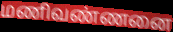
மணிவண்ணனை